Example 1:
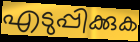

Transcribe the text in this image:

എടുപ്പിക്കുക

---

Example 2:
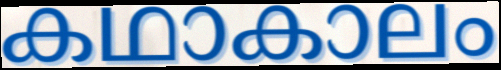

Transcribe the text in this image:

കഥാകാലം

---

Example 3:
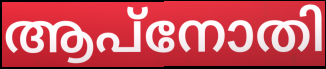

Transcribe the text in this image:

ആപ്നോതി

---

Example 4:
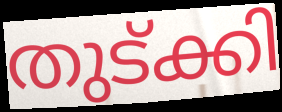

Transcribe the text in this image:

തുട്ക്കി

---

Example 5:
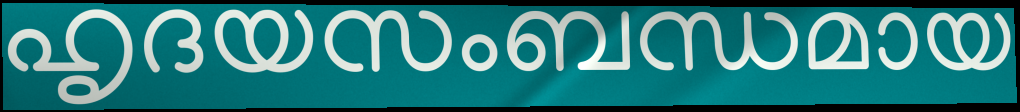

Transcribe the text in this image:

ഹൃദയസംബന്ധമായ